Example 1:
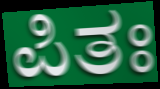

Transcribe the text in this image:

ಪಿತಃ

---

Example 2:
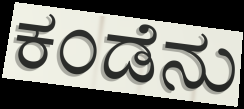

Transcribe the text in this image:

ಕಂಡೆನು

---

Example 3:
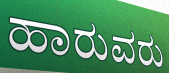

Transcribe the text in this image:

ಹಾರುವರು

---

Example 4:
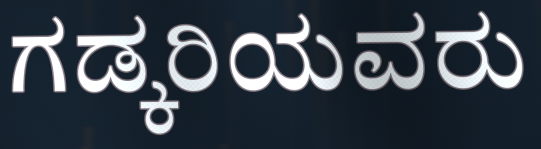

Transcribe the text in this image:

ಗಡ್ಕರಿಯವರು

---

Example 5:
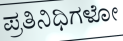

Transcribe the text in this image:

ಪ್ರತಿನಿಧಿಗಳೋ